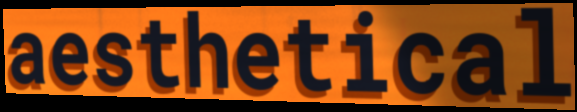
aesthetical